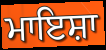
ਮਾਇਸ਼ਾ